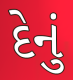
દેનું